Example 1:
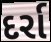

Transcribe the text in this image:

દર્રા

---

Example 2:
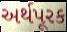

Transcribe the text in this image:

અર્થપૂરક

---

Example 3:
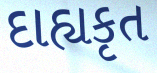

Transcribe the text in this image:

દાહ્યકૃત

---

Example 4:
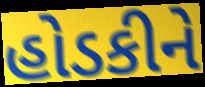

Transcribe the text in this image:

હોડકીને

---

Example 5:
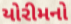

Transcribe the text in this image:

યોરીમનો